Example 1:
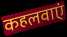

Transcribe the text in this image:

कहलवाएं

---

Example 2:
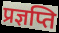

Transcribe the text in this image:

प्रज्ञप्ति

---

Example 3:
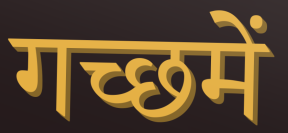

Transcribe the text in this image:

गच्छमें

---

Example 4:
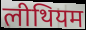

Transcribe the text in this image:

लीथियम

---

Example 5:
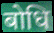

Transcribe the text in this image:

बोधि